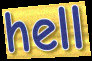
hell